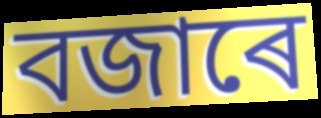
বজাৰে